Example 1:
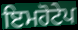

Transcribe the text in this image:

ਇਮਹੋਟੇਪ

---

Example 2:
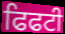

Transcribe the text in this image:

ਫਿਫਟੀ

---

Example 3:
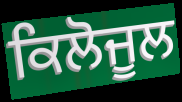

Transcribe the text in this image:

ਕਿਲੋਜੂਲ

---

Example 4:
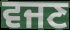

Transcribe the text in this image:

ਵਜਣ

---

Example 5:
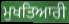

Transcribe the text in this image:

ਮੁਖਤਿਆਰੀ